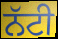
ਨੱਟੀ